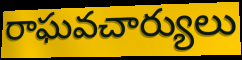
రాఘవచార్యులు